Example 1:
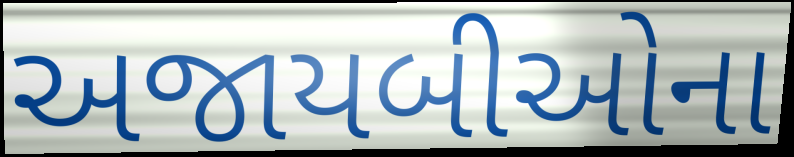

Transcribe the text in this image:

અજાયબીઓના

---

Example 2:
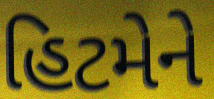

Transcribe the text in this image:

હિટમેને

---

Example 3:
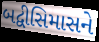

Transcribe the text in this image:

બદ્વીસિમાસને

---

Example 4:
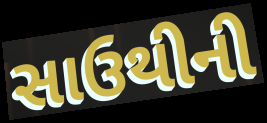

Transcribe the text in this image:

સાઉથીની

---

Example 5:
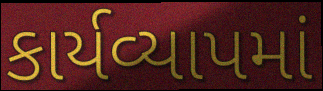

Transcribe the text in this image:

કાર્યવ્યાપમાં